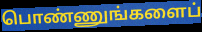
பொண்ணுங்களைப்